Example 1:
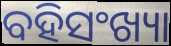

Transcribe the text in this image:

ବହିସଂଖ୍ୟା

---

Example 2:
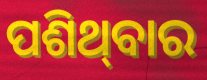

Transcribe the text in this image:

ପଶିଥ୍‌ବାର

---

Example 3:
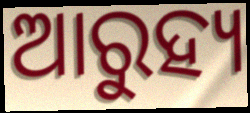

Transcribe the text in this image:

ଆରୁହ୍ୟ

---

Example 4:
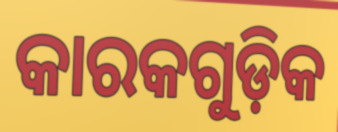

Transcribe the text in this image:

କାରକଗୁଡ଼ିକ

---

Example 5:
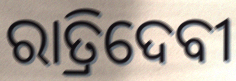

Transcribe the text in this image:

ରାତ୍ରିଦେବୀ